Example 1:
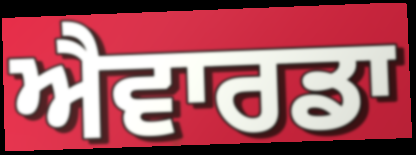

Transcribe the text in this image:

ਐਵਾਰਡਾ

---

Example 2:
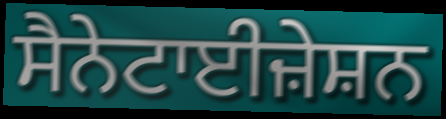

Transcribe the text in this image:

ਸੈਨੇਟਾਈਜ਼ੇਸ਼ਨ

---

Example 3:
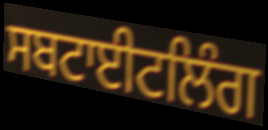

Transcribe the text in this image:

ਸਬਟਾਈਟਲਿੰਗ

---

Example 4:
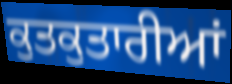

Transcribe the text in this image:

ਕੁਤਕੁਤਾਰੀਆਂ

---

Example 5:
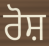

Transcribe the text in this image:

ਰੋਸ਼